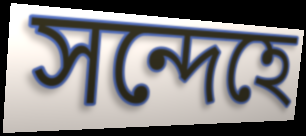
সন্দেহে